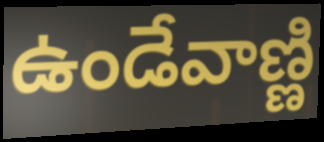
ఉండేవాణ్ణి